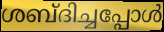
ശബ്ദിച്ചപ്പോൾ